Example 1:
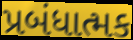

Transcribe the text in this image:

પ્રબંધાત્મક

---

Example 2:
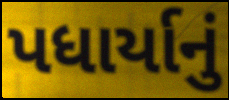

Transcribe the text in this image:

પધાર્યાનું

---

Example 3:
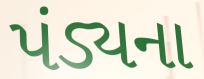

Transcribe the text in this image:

પંડ્યના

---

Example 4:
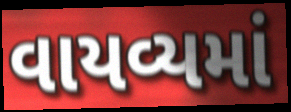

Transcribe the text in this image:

વાયવ્યમાં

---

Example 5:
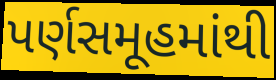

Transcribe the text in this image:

પર્ણસમૂહમાંથી